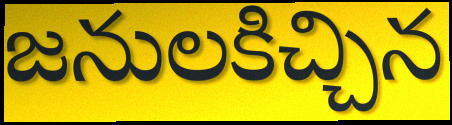
జనులకిచ్చిన